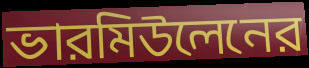
ভারমিউলেনের